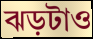
ঝড়টাও